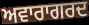
ਅਵਾਰਾਗਰਦ